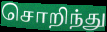
சொறிந்து